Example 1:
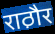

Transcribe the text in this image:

राठ़ौर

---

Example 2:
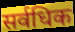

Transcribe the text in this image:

सर्वधिक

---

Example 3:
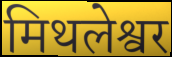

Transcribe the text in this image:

मिथलेश्वर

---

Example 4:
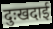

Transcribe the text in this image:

दुःखदाई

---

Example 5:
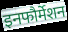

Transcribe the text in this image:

इनफौर्मेशन